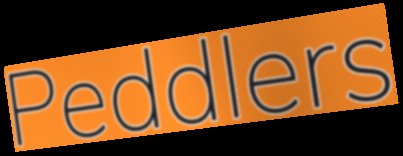
Peddlers